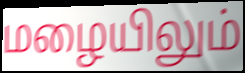
மழையிலும்